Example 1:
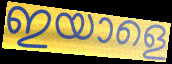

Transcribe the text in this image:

ഇയാളെ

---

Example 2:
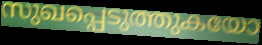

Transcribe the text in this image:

സുഖപ്പെടുത്തുകയോ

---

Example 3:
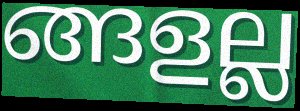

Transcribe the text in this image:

ങ്ങളല്ല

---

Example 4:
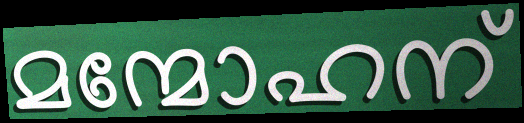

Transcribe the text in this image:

മന്മോഹന്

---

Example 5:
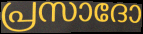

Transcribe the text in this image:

പ്രസാദോ